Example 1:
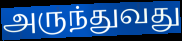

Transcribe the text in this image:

அருந்துவது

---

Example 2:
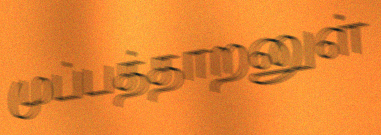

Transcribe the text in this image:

முப்பத்தாறனுள்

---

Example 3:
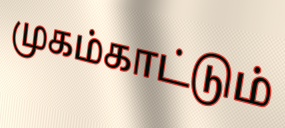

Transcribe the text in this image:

முகம்காட்டும்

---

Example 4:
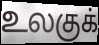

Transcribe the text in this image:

உலகுக்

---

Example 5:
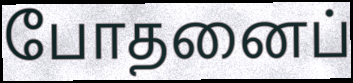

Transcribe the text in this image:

போதனைப்